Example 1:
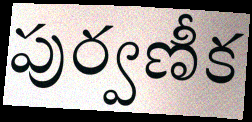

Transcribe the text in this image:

పుర్వణీక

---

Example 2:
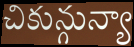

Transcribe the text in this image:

చికున్గున్యా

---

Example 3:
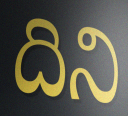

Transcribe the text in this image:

దిని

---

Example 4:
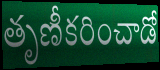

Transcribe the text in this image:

తృణీకరించాడో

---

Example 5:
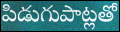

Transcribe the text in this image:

పిడుగుపాట్లతో